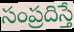
సంప్రదిస్తే